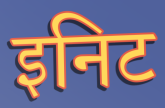
इनिट